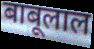
बाबूलाल